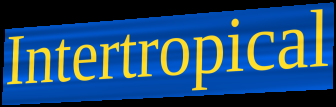
Intertropical